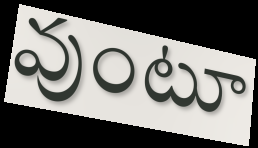
వుంటూ